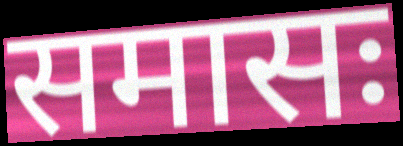
समासः